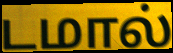
டமால்